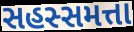
સહસ્સમત્તા